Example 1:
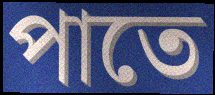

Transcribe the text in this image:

পাতে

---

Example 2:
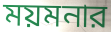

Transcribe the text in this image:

ময়মনার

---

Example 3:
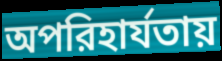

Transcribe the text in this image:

অপরিহার্যতায়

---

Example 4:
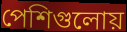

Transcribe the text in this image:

পেশিগুলোয়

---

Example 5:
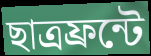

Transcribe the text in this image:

ছাত্রফ্রন্টে